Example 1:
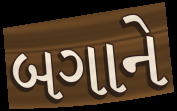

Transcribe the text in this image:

બગાને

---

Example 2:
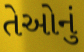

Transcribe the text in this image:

તેઓનું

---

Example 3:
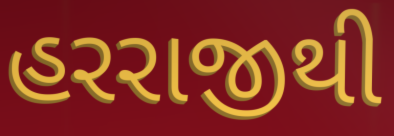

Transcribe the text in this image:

હરરાજીથી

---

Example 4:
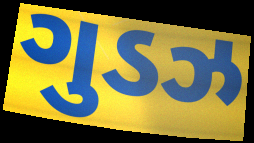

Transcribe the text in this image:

ગુડઝ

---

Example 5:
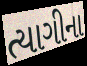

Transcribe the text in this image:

ત્યાગીના